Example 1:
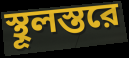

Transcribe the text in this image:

স্থূলস্তরে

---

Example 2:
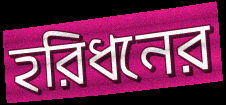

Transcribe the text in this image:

হরিধনের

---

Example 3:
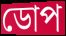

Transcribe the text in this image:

ডোপ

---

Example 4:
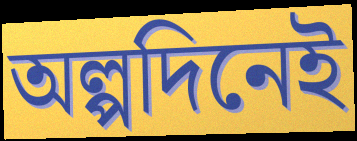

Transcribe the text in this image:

অল্পদিনেই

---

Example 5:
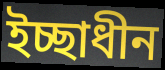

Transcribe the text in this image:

ইচ্ছাধীন